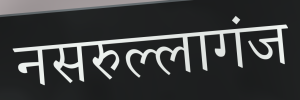
नसरुल्लागंज